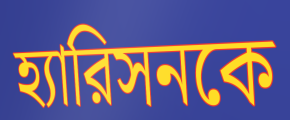
হ্যারিসনকে